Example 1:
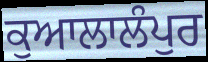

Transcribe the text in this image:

ਕੁਆਲਾਲੰਪੁਰ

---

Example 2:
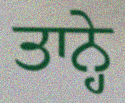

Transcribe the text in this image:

ਤਾਨ੍ਹੇ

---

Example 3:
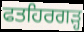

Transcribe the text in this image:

ਫਤਹਿਰਗੜ੍ਹ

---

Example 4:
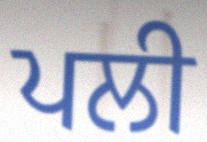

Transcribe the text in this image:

ਪਲੀ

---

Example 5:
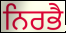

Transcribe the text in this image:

ਨਿਰਭੈ